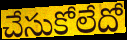
చేసుకోలేదో